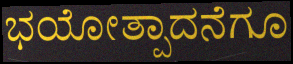
ಭಯೋತ್ಪಾದನೆಗೂ